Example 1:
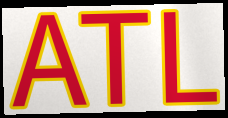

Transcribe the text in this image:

ATL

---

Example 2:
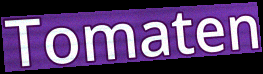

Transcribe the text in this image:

Tomaten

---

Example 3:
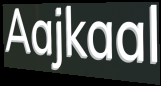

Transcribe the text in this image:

Aajkaal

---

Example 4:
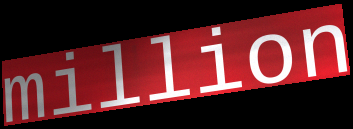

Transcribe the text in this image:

million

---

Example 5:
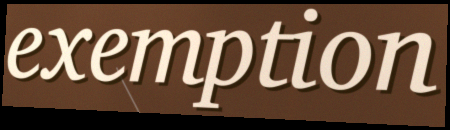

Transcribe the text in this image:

exemption